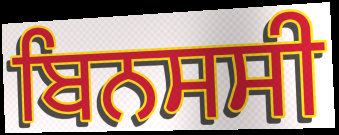
ਬਿਨਸਸੀ